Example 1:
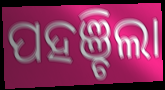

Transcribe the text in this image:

ପହଞ୍ଚିଲା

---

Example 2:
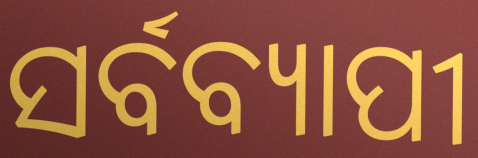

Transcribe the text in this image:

ସର୍ବବ୍ୟାପୀ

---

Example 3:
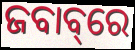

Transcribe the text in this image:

ଜବାବ୍‌ରେ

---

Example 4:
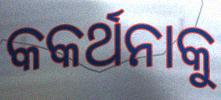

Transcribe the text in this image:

କକର୍ଥନାକୁ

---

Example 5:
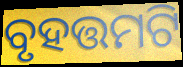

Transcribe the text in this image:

ବୃହତ୍ତମଟି